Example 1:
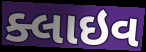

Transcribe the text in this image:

ક્લાઇવ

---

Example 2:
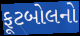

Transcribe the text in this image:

ફૂટબોલનો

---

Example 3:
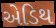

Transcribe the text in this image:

એડિથ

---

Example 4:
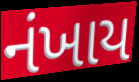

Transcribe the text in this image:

નંખાય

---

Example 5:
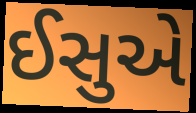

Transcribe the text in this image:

ઈસુએ